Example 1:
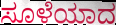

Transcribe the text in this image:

ಸೂಳೆಯಾದ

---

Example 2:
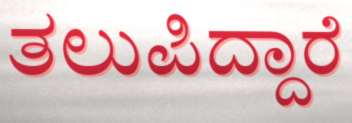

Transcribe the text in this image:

ತಲುಪಿದ್ದಾರೆ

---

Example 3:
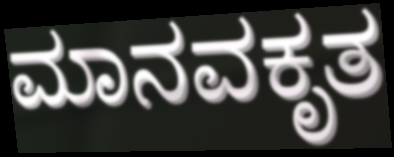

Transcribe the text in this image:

ಮಾನವಕೃತ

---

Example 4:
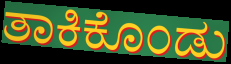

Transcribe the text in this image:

ತಾಕಿಕೊಂಡು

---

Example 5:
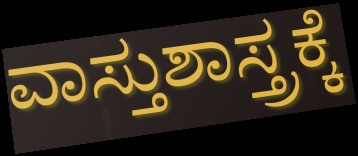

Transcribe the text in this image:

ವಾಸ್ತುಶಾಸ್ತ್ರಕ್ಕೆ